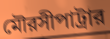
মৌরসীপাট্রার